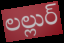
లల్లుర్